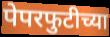
पेपरफुटीच्या